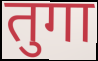
तुगा